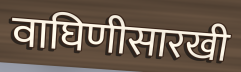
वाघिणीसारखी